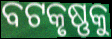
ବଟକୃଷ୍ଣକୁ